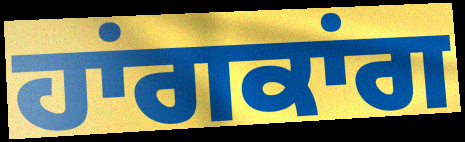
ਹਾਂਗਕਾਂਗ